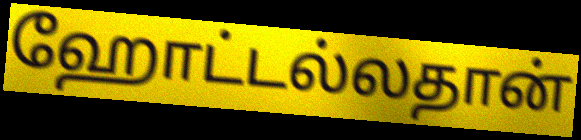
ஹோட்டல்லதான்